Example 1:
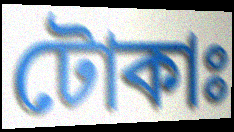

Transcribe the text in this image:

টোকাঃ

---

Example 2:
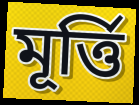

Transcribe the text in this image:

মূৰ্ত্তি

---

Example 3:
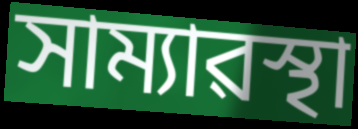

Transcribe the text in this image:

সাম্যাৱস্থা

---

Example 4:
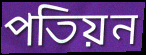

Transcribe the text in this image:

পতিয়ন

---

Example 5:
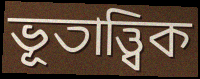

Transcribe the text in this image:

ভূতাত্ত্বিক